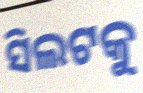
ସିଲଟକୁ